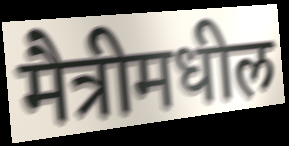
मैत्रीमधील